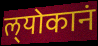
ल्योकानं